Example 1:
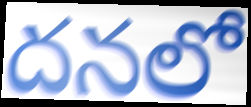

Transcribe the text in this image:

దనలో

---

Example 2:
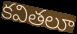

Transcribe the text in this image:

కవితలూ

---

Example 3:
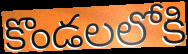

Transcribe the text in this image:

కొండలలోకి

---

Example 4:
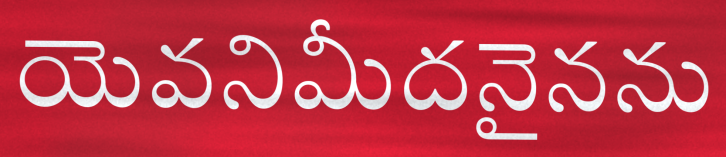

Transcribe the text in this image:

యెవనిమీదనైనను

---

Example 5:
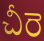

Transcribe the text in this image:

చీరె